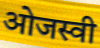
ओजस्वी